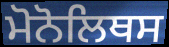
ਮੋਨੋਲਿਥਸ